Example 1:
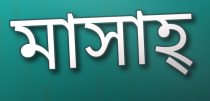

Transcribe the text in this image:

মাসাহ্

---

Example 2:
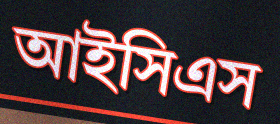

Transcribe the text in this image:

আইসিএস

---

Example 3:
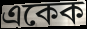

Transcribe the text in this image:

একেক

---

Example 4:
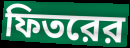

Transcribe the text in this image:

ফিতরের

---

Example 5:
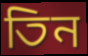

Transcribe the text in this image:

তিন